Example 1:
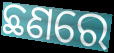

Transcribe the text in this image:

ଛଣରେ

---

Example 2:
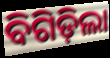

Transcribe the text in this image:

ବିଗିଡ଼ିଲା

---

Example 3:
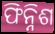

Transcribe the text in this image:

ଫିନ୍ନିଶ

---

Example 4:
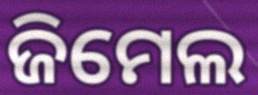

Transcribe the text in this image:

ଜିମେଲ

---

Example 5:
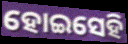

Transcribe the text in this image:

ହୋଇସେହି